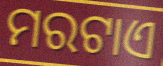
ମରଟାଏ